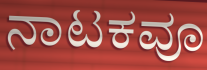
ನಾಟಕವೂ